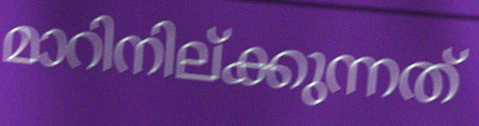
മാറിനില്ക്കുന്നത്